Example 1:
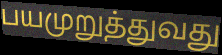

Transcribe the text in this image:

பயமுறுத்துவது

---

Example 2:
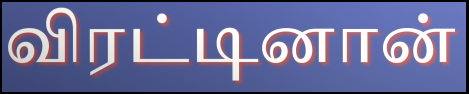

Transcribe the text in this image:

விரட்டினான்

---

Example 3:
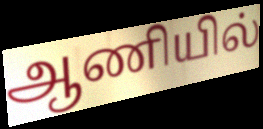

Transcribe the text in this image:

ஆணியில்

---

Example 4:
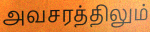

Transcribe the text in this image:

அவசரத்திலும்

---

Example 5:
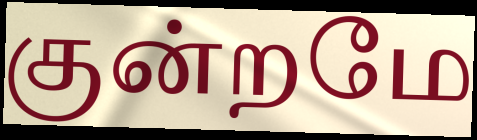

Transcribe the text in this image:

குன்றமே